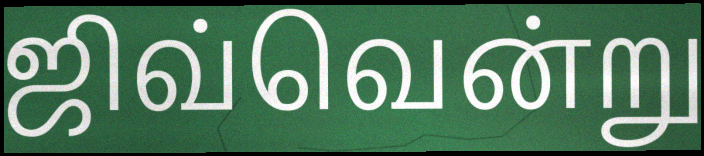
ஜிவ்வென்று